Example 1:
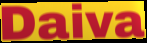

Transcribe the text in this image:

Daiva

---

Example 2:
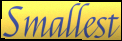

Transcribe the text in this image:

Smallest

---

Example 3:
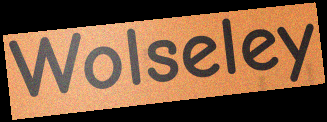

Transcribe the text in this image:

Wolseley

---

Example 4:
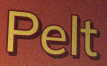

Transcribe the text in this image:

Pelt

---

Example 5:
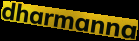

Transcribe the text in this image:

dharmanna